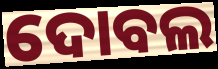
ଦୋବଲ